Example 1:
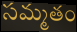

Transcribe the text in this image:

సమ్మతం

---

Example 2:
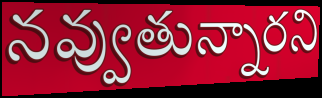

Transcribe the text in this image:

నవ్వుతున్నారని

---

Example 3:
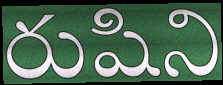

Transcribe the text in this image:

రుషిని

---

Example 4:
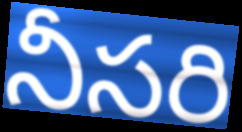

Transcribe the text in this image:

నీసరి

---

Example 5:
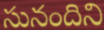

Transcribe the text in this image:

సునందిని